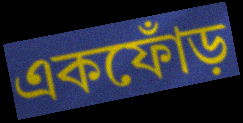
একফোঁড়